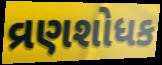
વ્રણશોધક